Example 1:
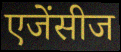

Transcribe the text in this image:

एजेंसीज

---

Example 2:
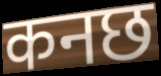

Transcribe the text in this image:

कनछ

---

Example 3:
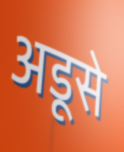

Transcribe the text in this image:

अडूसे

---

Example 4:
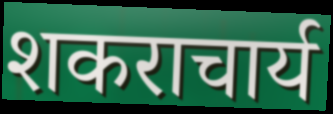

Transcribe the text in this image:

शकराचार्य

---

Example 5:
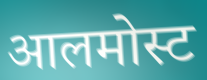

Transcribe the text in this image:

आलमोस्ट